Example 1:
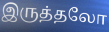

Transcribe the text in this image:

இருத்தலோ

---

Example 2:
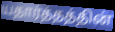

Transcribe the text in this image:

யதார்த்தத்தின்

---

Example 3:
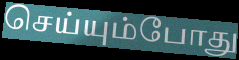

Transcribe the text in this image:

செய்யும்போது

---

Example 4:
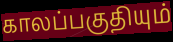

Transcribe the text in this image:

காலப்பகுதியும்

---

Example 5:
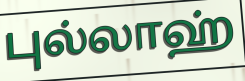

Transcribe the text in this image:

புல்லாஹ்